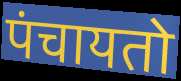
पंचायतो